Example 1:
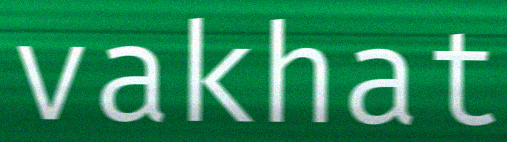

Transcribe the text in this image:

vakhat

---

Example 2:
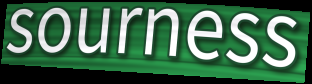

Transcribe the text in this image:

sourness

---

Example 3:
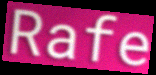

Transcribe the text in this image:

Rafe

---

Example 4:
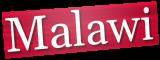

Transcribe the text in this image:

Malawi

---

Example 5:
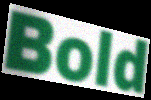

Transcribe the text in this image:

Bold